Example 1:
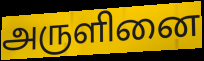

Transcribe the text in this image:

அருளினை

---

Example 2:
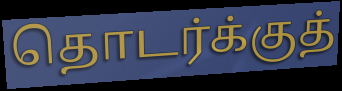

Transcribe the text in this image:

தொடர்க்குத்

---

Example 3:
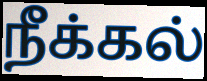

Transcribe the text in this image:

நீக்கல்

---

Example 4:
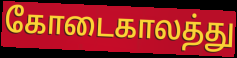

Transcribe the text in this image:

கோடைகாலத்து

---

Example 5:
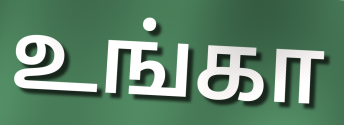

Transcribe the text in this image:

உங்கா